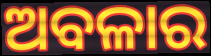
ଅବଳାର